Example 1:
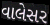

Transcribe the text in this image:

વાલેસર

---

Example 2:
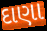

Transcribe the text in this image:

દાણા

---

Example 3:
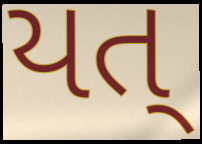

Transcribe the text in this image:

યત્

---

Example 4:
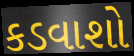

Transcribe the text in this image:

કડવાશો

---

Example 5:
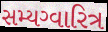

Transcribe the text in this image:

સમ્યગ્વારિત્ર